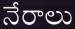
నేరాలు